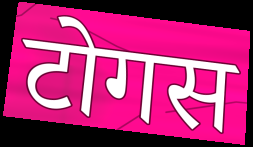
टोगस